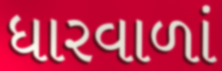
ધારવાળાં